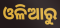
ଓଳିଆରୁ